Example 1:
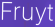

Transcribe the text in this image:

Fruyt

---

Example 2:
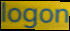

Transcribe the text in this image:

logon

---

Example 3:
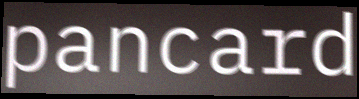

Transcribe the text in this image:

pancard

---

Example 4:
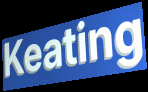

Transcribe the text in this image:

Keating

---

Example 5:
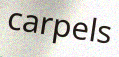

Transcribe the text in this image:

carpels